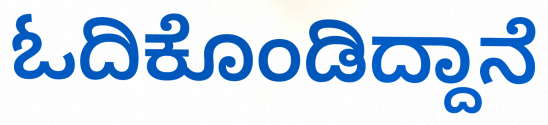
ಓದಿಕೊಂಡಿದ್ದಾನೆ